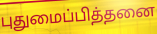
புதுமைப்பித்தனை